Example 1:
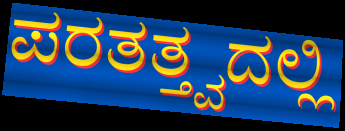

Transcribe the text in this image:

ಪರತತ್ತ್ವದಲ್ಲಿ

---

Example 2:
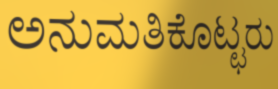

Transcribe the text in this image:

ಅನುಮತಿಕೊಟ್ಟರು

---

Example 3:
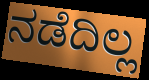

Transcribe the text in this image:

ನಡೆದಿಲ್ಲ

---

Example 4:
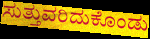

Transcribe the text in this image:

ಸುತ್ತುವರಿದುಕೊಂಡು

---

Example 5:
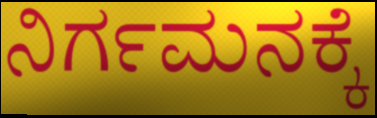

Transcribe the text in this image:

ನಿರ್ಗಮನಕ್ಕೆ